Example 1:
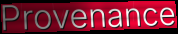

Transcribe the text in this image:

Provenance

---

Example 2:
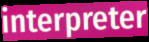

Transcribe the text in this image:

interpreter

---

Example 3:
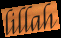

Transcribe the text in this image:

lillah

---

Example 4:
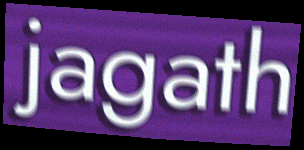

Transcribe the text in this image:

jagath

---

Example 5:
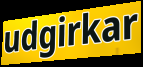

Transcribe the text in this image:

udgirkar